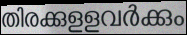
തിരക്കുളളവർക്കും